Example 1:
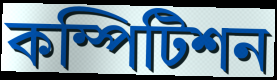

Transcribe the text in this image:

কম্পিটিশন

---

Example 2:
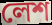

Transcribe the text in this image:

লেশ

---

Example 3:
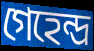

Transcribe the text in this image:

গেহেন্দ্র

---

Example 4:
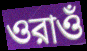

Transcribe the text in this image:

ওরাওঁ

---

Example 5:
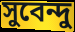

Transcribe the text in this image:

সুবেন্দু